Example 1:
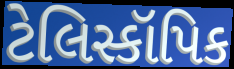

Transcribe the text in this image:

ટેલિસ્કૉપિક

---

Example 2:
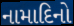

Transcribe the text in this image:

નામાદિનો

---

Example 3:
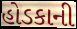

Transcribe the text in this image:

હોડકાની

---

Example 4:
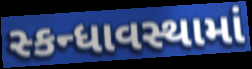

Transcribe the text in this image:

સ્કન્ધાવસ્થામાં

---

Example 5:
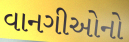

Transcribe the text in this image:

વાનગીઓનો